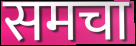
समचा